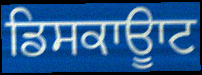
ਡਿਸਕਾਊਾਟ